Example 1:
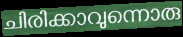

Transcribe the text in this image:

ചിരിക്കാവുന്നൊരു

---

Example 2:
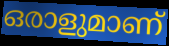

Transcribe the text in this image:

ഒരാളുമാണ്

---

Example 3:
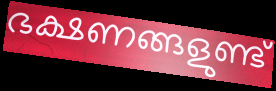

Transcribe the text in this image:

ഭക്ഷണങ്ങളുണ്ട്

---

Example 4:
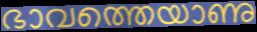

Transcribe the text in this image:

ഭാവത്തെയാണു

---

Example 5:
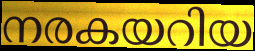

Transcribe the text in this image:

നരകയറിയ